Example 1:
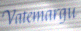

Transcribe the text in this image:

Vatemargu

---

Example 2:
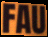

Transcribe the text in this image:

FAU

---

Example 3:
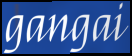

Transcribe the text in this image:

gangai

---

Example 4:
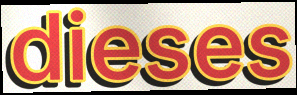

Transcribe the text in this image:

dieses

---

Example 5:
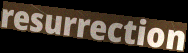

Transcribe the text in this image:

resurrection